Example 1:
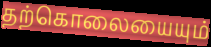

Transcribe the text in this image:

தற்கொலையையும்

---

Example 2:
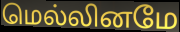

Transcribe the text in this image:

மெல்லினமே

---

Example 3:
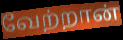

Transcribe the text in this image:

வேற்றான்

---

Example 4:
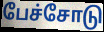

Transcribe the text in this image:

பேச்சோடு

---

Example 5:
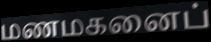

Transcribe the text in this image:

மணமகனைப்